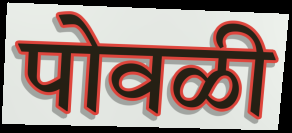
पोवळी